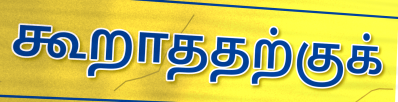
கூறாததற்குக்